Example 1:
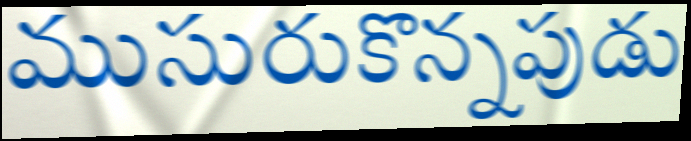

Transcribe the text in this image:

ముసురుకొన్నపుడు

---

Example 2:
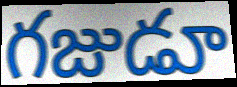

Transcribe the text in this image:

గజుడూ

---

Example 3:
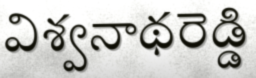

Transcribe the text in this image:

విశ్వనాథరెడ్డి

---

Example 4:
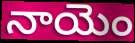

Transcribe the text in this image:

నాయెం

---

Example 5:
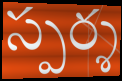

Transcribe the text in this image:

స్పర్శ